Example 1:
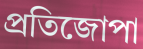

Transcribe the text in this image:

প্ৰতিজোপা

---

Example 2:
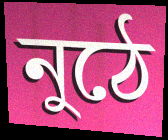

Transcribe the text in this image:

নুঠে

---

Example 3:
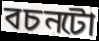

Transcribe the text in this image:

বচনটো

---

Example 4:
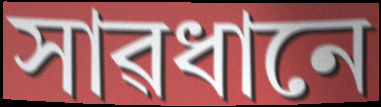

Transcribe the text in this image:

সাৱধানে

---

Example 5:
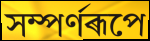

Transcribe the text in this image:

সম্পৰ্ণৰূপে